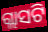
ଗ୍ଲାସଟି